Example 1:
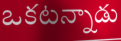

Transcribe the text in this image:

ఒకటన్నాడు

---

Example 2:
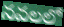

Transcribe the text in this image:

నవలలో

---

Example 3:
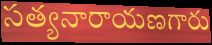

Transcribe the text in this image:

సత్యనారాయణగారు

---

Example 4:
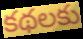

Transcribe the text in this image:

కథలకు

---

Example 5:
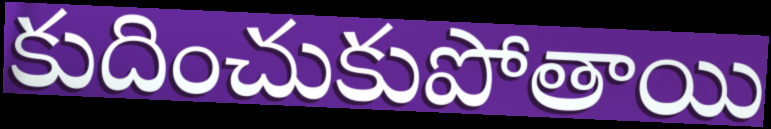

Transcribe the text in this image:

కుదించుకుపోతాయి